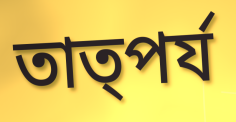
তাত্পর্য